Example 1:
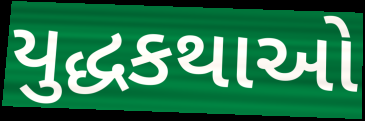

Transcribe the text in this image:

યુદ્ધકથાઓ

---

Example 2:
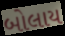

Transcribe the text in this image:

બોલાય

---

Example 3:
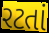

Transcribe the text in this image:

રટતાં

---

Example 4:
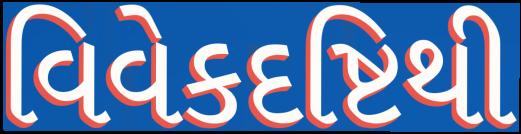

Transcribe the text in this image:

વિવેકદષ્ટિથી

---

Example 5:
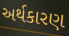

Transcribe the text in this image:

અર્થકારણ